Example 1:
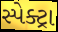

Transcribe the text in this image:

સ્પેક્ટ્રા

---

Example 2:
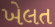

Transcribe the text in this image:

ખેલત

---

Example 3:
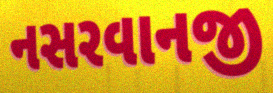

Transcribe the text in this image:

નસરવાનજી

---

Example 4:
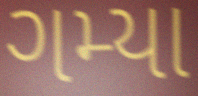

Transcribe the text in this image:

ગમ્યા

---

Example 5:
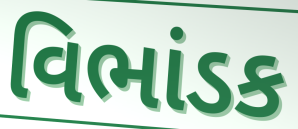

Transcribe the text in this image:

વિભાંડક